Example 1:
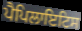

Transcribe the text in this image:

ਪੈਪਿਲਾਇਟਿਸ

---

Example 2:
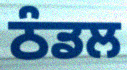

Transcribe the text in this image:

ਠੰਡਲ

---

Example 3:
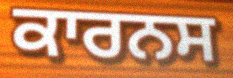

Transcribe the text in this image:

ਕਾਰਨਸ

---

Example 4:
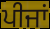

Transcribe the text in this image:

ਪੀਜਾਂ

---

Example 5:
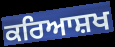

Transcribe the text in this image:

ਕਰਿਆਸ਼ਖ